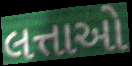
લત્તાઓ